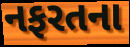
નફરતના